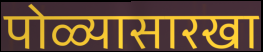
पोळ्यासारखा